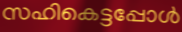
സഹികെട്ടപ്പോൾ